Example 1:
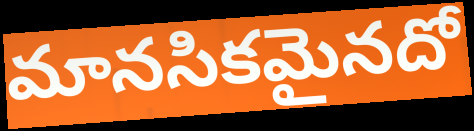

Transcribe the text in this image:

మానసికమైనదో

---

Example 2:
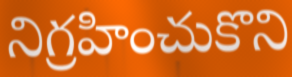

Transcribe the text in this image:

నిగ్రహించుకొని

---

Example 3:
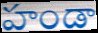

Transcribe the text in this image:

హండా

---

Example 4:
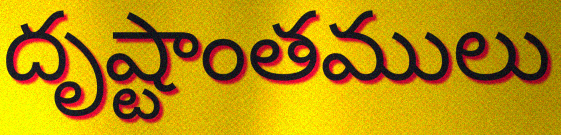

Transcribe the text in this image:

దృష్టాంతములు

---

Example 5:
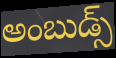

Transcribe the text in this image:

అంబుడ్స్